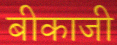
बीकाजी